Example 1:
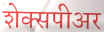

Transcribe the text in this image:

शेक्सपीअर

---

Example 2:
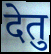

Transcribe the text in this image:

देतु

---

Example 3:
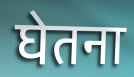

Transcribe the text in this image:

घेतना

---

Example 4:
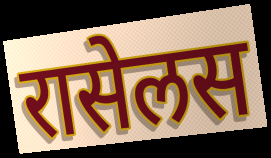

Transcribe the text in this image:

रासेलस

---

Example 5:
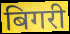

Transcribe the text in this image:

बिगरी